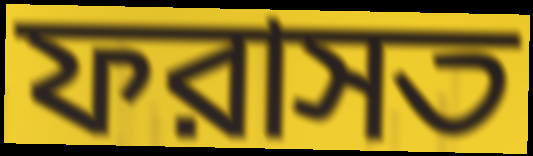
ফরাসত